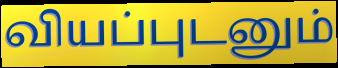
வியப்புடனும்